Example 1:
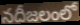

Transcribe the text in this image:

నదీజలంలో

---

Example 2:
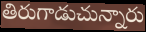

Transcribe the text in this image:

తిరుగాడుచున్నారు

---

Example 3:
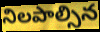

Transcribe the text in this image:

నిలపాల్సిన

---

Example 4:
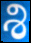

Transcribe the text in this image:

శి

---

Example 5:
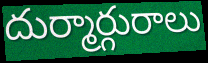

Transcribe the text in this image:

దుర్మార్గురాలు